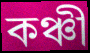
কঞ্চী